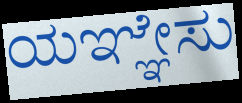
ಯಞ್ಞೇಸು